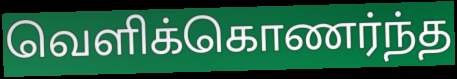
வெளிக்கொணர்ந்த